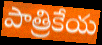
పాత్రికేయ